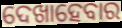
ଦେଖାହେବାର